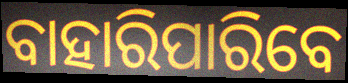
ବାହାରିପାରିବେ